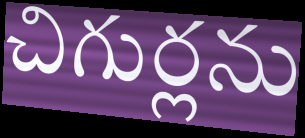
చిగుర్లను